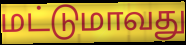
மட்டுமாவது